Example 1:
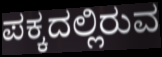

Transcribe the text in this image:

ಪಕ್ಕದಲ್ಲಿರುವ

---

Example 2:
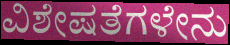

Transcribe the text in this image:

ವಿಶೇಷತೆಗಳೇನು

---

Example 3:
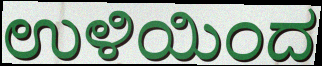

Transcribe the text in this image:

ಉಳಿಯಿಂದ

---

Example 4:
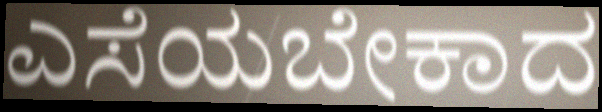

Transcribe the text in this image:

ಎಸೆಯಬೇಕಾದ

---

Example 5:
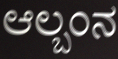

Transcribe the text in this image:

ಆಲ್ಬಂನ